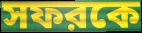
সফরকে